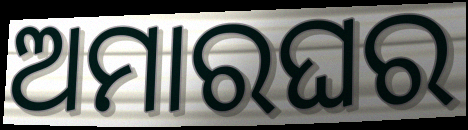
ଅମାରଘର